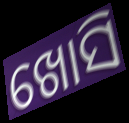
ଖୋସି